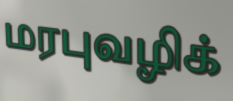
மரபுவழிக்